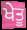
ਖੇਤੂ